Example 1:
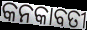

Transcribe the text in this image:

କନକାବତୀ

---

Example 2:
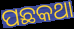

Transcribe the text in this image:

ପଛକଥା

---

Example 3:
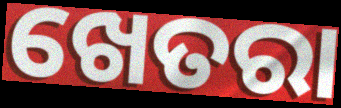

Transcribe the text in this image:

ଖେତରା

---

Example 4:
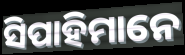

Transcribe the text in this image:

ସିପାହିମାନେ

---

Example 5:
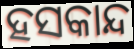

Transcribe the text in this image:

ହସକାନ୍ଦ